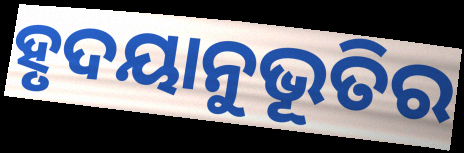
ହୃଦୟାନୁଭୂତିର